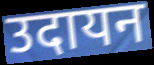
उदायन